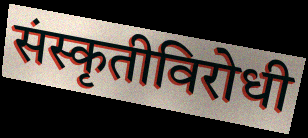
संस्कृतीविरोधी